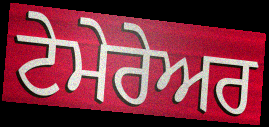
ਟੇਮੇਰੇਅਰ